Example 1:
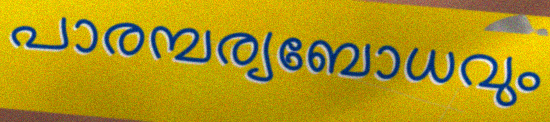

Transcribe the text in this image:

പാരമ്പര്യബോധവും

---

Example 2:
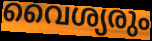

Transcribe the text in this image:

വൈശ്യരും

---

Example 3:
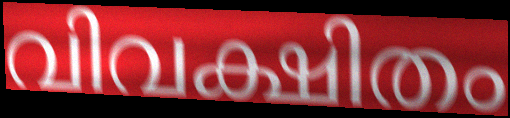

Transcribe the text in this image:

വിവക്ഷിതം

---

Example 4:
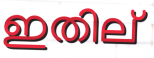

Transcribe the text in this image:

ഇതില്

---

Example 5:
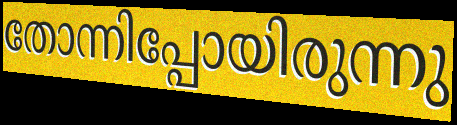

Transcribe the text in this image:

തോന്നിപ്പോയിരുന്നു